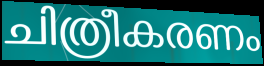
ചിത്രീകരണം